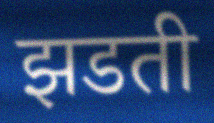
झडती